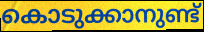
കൊടുക്കാനുണ്ട്